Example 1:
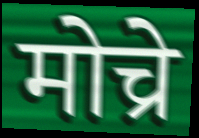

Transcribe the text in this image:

मोच्रे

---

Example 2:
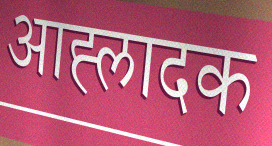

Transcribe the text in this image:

आह्लादक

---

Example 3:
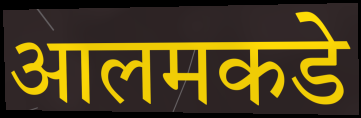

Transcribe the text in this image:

आलमकडे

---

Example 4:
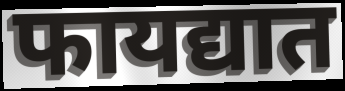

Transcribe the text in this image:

फायद्यात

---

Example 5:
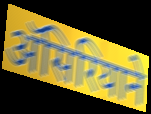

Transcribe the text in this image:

ॲसिरियाने